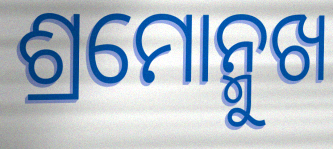
ଶ୍ରମୋନ୍ମୁଖ